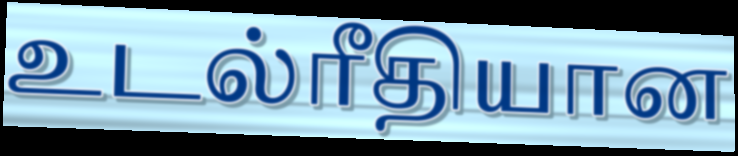
உடல்ரீதியான